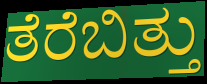
ತೆರೆಬಿತ್ತು